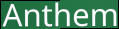
Anthem